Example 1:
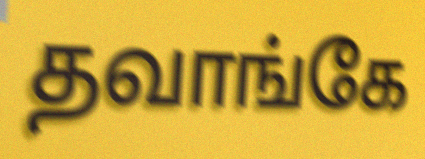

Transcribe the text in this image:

தவாங்கே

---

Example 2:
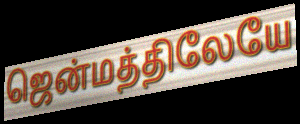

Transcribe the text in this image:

ஜென்மத்திலேயே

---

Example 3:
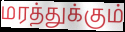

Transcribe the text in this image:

மரத்துக்கும்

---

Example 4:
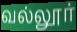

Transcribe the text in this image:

வல்லூர்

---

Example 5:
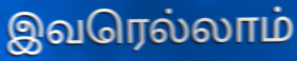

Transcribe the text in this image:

இவரெல்லாம்